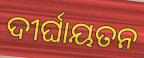
ଦୀର୍ଘାୟତନ